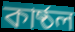
কাষ্ঠল